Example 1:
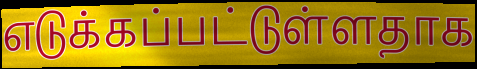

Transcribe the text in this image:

எடுக்கப்பட்டுள்ளதாக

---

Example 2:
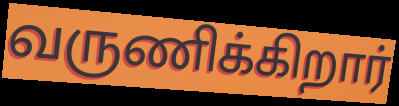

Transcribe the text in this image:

வருணிக்கிறார்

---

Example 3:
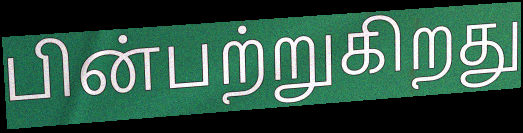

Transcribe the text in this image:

பின்பற்றுகிறது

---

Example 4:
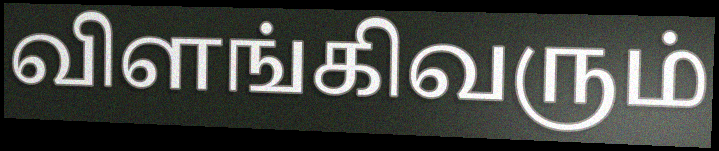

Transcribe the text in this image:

விளங்கிவரும்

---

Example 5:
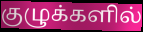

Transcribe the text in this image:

குழுக்களில்